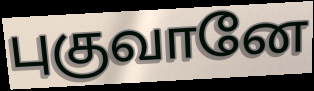
புகுவானே